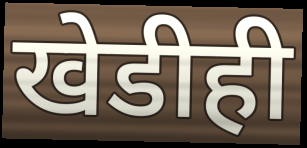
खेडीही